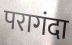
परागंदा